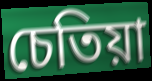
চেতিয়া